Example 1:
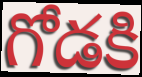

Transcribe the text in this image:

గోడకి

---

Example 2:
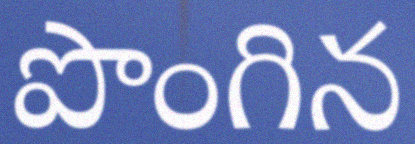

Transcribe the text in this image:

పొంగిన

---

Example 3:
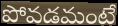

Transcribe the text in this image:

పోవడమంటే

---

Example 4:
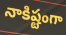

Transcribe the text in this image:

నాకిష్టంగా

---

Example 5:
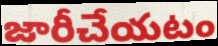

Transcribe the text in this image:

జారీచేయటం